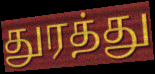
துரத்து